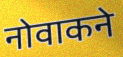
नोवाकने